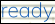
ready